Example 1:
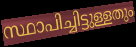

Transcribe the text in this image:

സ്ഥാപിച്ചിട്ടുള്ളതും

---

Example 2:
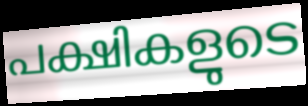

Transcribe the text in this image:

പക്ഷികളുടെ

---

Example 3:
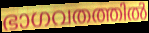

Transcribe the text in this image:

ഭാഗവതത്തിൽ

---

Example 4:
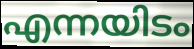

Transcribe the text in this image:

എന്നയിടം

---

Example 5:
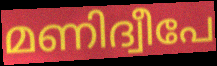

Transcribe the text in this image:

മണിദ്വീപേ